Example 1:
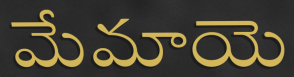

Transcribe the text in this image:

మేమాయె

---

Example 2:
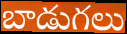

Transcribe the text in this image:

బాడుగలు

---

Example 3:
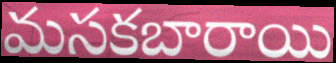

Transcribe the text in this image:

మసకబారాయి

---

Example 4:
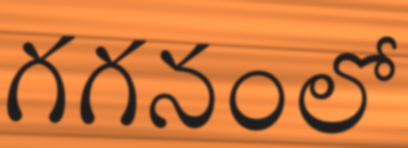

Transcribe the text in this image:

గగనంలో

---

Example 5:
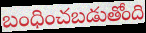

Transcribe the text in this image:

బంధించబడుతోంది